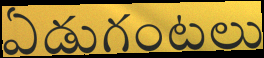
ఏడుగంటలు